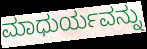
ಮಾಧುರ್ಯವನ್ನು